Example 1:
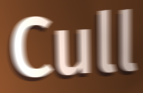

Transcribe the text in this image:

Cull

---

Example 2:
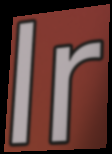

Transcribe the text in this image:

Ir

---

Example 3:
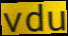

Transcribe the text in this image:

vdu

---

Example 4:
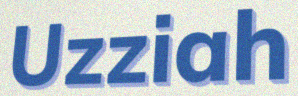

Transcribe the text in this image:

Uzziah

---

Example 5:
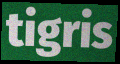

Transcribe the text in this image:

tigris